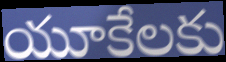
యూకేలకు